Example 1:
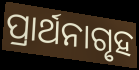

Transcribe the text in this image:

ପ୍ରାର୍ଥନାଗୃହ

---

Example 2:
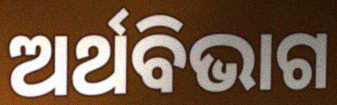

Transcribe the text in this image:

ଅର୍ଥବିଭାଗ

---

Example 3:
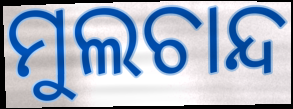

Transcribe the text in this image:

ମୁଲଚାନ୍ଦ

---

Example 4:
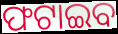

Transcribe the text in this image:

ଫଟାଇବ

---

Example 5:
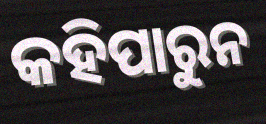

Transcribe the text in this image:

କହିପାରୁନ